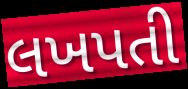
લખપતી